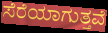
ಸೆರೆಯಾಗುತ್ತವೆ